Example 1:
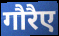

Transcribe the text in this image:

गौरैए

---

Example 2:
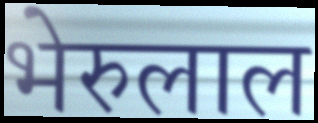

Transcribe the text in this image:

भेरुलाल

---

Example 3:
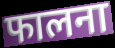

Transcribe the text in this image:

फालना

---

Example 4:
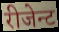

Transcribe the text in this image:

रीजेन्ट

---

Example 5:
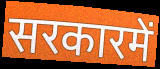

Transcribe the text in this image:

सरकारमें